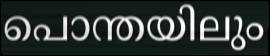
പൊന്തയിലും